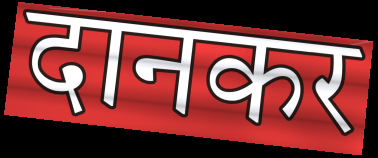
दानकर